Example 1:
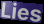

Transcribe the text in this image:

Lies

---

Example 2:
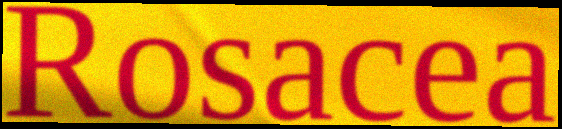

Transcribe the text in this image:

Rosacea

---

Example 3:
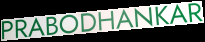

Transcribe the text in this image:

PRABODHANKAR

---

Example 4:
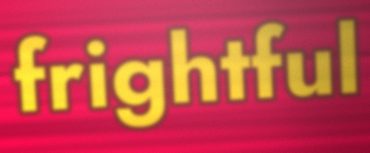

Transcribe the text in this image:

frightful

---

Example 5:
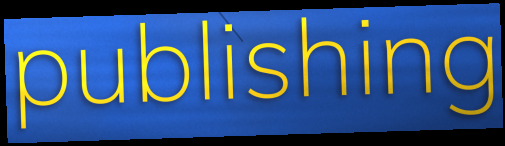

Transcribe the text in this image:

publishing